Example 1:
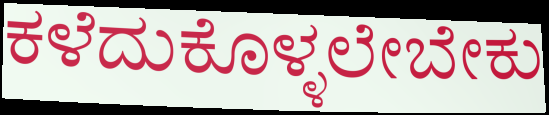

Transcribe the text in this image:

ಕಳೆದುಕೊಳ್ಳಲೇಬೇಕು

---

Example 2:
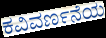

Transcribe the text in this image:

ಕವಿವರ್ಣನೆಯ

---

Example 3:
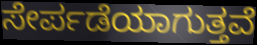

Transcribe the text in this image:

ಸೇರ್ಪಡೆಯಾಗುತ್ತವೆ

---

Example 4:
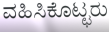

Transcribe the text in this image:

ವಹಿಸಿಕೊಟ್ಟರು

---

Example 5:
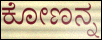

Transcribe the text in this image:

ಕೋಣನ್ನ